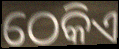
ଠେକିଏ